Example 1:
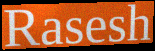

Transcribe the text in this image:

Rasesh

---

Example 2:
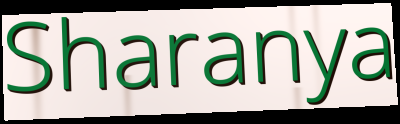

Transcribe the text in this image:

Sharanya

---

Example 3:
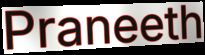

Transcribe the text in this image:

Praneeth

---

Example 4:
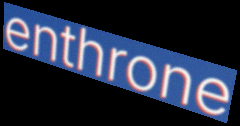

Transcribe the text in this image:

enthrone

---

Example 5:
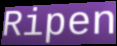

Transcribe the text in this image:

Ripen